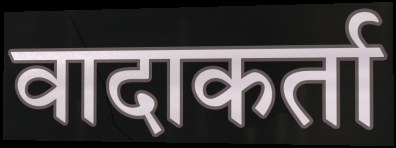
वादाकर्ता